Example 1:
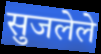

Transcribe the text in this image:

सुजलेले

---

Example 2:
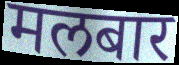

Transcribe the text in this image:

मलबार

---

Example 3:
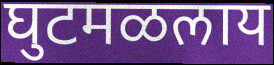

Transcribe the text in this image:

घुटमळलाय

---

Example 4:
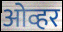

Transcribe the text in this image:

ओव्हर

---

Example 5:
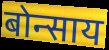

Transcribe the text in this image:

बोन्साय